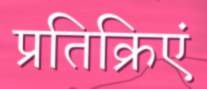
प्रतिक्रिएं